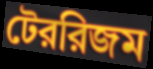
টেররিজম